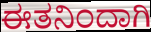
ಈತನಿಂದಾಗಿ